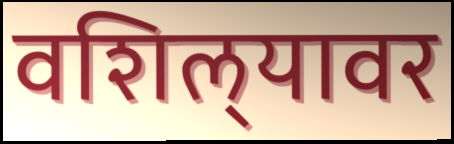
वशिल्यावर